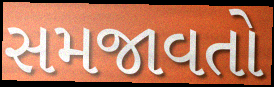
સમજાવતો